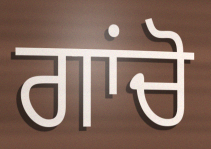
ਗਾਂਚੋ